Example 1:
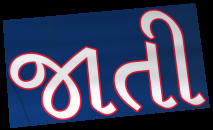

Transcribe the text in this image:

જાતી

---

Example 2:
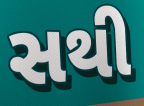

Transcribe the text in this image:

સથી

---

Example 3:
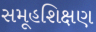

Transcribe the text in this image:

સમૂહશિક્ષણ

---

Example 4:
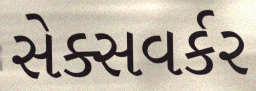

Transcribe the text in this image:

સેક્સવર્કર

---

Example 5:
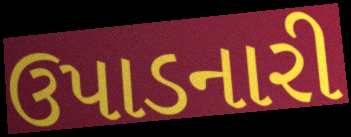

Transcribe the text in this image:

ઉપાડનારી